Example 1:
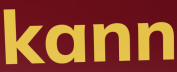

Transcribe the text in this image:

kann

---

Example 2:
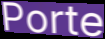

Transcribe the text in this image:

Porte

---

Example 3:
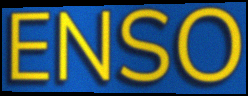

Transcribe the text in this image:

ENSO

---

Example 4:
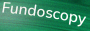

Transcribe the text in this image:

Fundoscopy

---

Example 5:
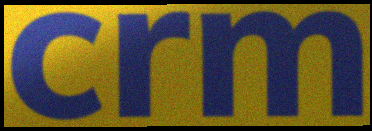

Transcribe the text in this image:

crm